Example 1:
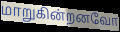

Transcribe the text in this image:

மாறுகின்றனவோ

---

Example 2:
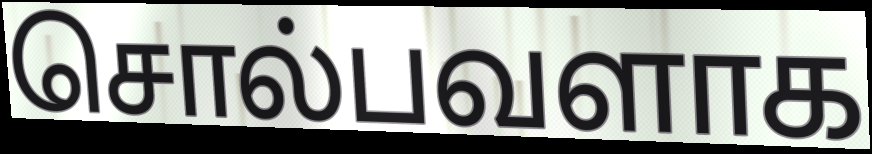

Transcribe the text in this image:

சொல்பவளாக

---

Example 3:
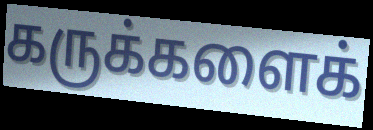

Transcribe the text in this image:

கருக்களைக்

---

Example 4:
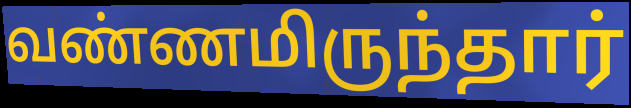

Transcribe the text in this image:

வண்ணமிருந்தார்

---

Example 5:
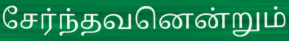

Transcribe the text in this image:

சேர்ந்தவனென்றும்